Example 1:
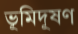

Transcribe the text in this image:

ভূমিদূষণ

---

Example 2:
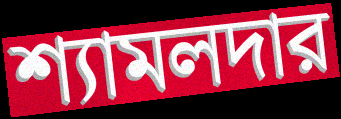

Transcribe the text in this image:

শ্যামলদার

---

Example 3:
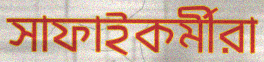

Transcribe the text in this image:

সাফাইকর্মীরা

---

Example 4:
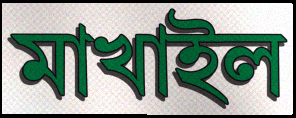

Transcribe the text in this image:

মাখাইল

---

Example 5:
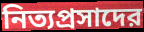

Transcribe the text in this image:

নিত্যপ্রসাদের